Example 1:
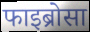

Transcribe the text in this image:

फाइब्रोसा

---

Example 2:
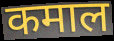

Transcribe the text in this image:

कमाल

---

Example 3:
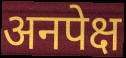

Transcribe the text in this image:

अनपेक्ष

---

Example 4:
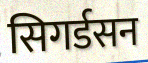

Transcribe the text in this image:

सिगर्डसन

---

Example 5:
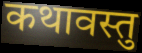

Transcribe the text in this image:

कथावस्‍तु